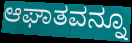
ಆಘಾತವನ್ನೂ